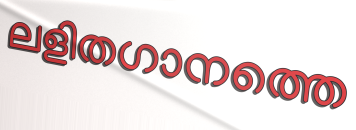
ലളിതഗാനത്തെ